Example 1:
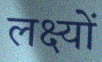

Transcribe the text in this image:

लक्ष्‍यों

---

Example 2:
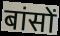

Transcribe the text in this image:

बांसों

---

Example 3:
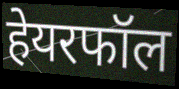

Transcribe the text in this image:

हेयरफॉल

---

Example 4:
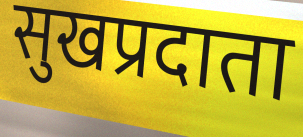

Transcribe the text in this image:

सुखप्रदाता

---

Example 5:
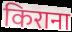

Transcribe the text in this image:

किराना